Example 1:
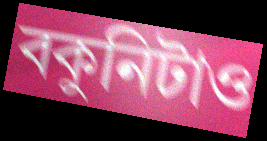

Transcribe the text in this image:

বকুনিটাও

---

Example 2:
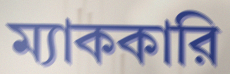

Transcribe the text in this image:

ম্যাককারি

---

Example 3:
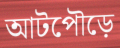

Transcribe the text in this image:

আটপৌড়ে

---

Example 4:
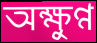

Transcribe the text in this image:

অক্ষুণ্ণ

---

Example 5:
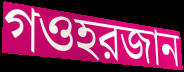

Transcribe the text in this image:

গওহরজান